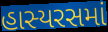
હાસ્યરસમાં